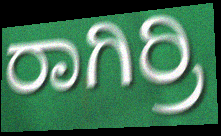
ರಾಗಿರ್ರಿ